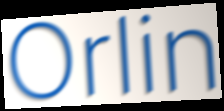
Orlin